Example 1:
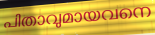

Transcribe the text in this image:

പിതാവുമായവനെ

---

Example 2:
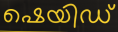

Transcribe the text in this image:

ഷെയിഡ്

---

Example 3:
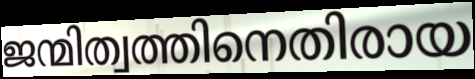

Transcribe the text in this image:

ജന്മിത്വത്തിനെതിരായ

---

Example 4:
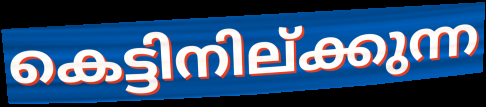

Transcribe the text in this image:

കെട്ടിനില്ക്കുന്ന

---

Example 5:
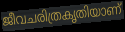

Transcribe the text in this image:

ജീവചരിത്രകൃതിയാണ്